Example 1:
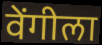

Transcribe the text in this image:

वेंगीला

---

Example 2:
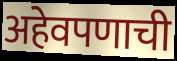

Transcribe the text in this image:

अहेवपणाची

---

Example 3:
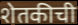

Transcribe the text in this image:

शेतकीची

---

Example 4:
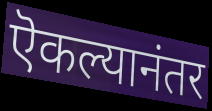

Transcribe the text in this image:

ऎकल्यानंतर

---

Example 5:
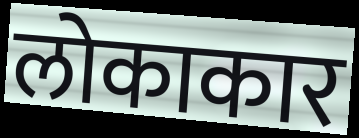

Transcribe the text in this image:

लोकाकार